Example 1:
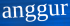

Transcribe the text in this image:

anggur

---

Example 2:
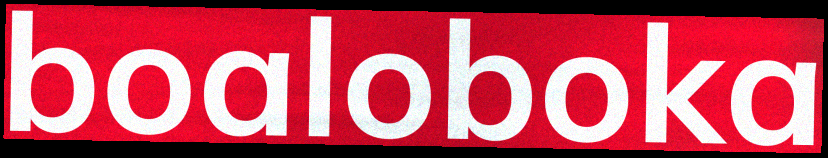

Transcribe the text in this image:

boaloboka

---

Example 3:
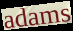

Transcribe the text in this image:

adams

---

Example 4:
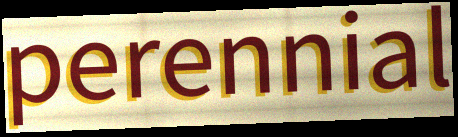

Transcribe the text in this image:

perennial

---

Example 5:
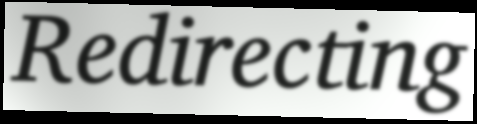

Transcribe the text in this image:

Redirecting